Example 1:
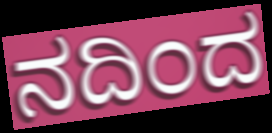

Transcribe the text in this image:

ನದಿಂದ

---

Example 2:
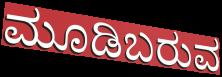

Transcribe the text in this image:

ಮೂಡಿಬರುವ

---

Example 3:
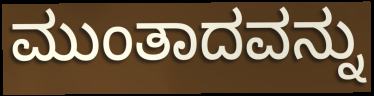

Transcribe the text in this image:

ಮುಂತಾದವನ್ನು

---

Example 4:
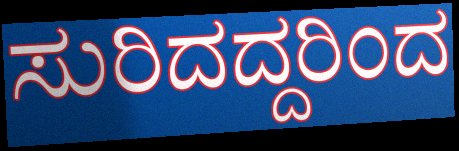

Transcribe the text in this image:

ಸುರಿದದ್ದರಿಂದ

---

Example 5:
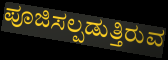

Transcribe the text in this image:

ಪೂಜಿಸಲ್ಪಡುತ್ತಿರುವ